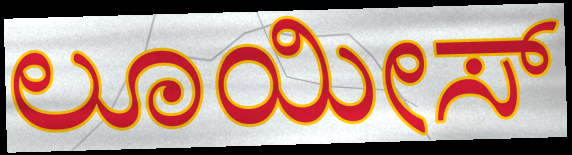
ಲೂಯೀಸ್